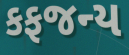
કફજન્ય